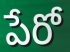
పేరో